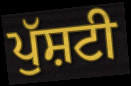
ਪੁੱਸ਼ਟੀ